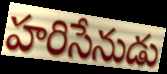
హరిసేనుడు